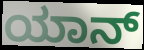
ಯಾನ್